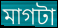
মাগটা